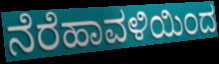
ನೆರೆಹಾವಳಿಯಿಂದ